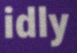
idly